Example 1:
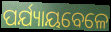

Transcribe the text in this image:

ପର୍ଯ୍ୟାୟବେଳେ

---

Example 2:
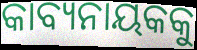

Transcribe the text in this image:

କାବ୍ୟନାୟକକୁ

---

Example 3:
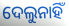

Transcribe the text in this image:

ଦେଲୁନାହିଁ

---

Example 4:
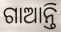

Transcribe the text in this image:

ଗାଆନ୍ତି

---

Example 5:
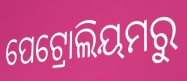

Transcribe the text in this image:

ପେଟ୍ରୋଲିୟମରୁ